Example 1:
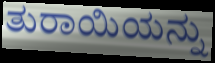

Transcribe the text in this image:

ತುರಾಯಿಯನ್ನು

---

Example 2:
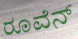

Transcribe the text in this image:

ರೂವೆನ್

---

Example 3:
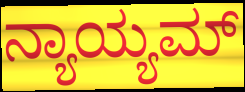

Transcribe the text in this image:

ನ್ಯಾಯ್ಯಮ್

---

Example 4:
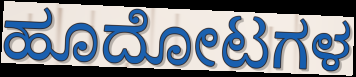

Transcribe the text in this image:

ಹೂದೋಟಗಳ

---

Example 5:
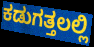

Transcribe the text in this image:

ಕಡುಗತ್ತಲಲ್ಲಿ